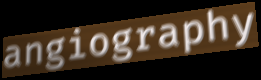
angiography